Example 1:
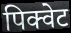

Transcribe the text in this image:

पिक्वेट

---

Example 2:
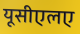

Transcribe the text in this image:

यूसीएलए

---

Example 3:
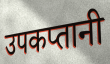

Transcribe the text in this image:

उपकप्तानी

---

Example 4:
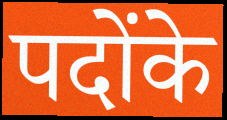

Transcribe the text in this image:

पदोंके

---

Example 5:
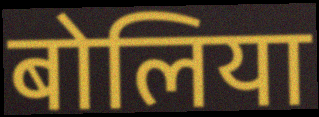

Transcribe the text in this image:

बोलिया